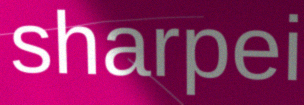
sharpei